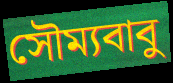
সৌম্যবাবু